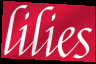
lilies